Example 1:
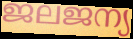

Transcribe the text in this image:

ജലജന്യ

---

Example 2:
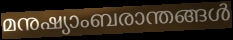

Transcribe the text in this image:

മനുഷ്യാംബരാന്തങ്ങൾ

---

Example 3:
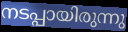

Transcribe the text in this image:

നടപ്പായിരുന്നു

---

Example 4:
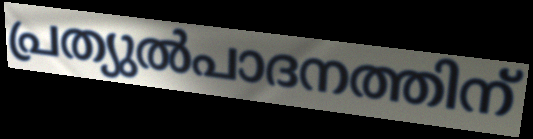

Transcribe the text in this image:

പ്രത്യുൽപാദനത്തിന്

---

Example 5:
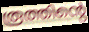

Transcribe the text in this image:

രൂത്തിന്റെ